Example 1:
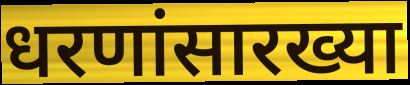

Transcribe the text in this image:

धरणांसारख्या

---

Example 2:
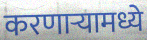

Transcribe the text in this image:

करणाऱ्यामध्ये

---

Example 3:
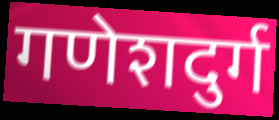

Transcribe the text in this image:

गणेशदुर्ग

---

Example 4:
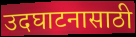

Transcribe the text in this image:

उदघाटनासाठी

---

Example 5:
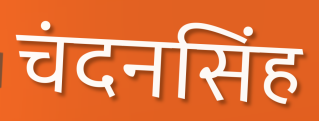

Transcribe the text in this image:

चंदनसिंह